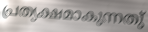
പ്രത്യക്ഷമാകുന്നതു്